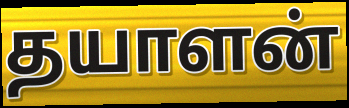
தயாளன்